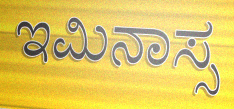
ಇಮಿನಾಸ್ಸ